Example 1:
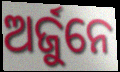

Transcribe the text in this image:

ଅର୍ଜୁନେ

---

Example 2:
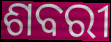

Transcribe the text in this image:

ଶବରୀ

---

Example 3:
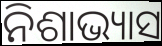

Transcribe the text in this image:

ନିଶାଭ୍ୟାସ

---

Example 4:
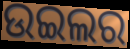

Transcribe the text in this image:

ଉଇଲର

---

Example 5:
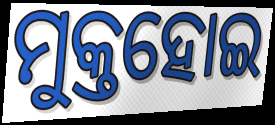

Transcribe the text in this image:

ମୁକ୍ତହୋଇ